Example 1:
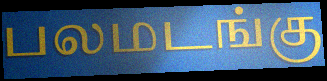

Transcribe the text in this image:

பலமடங்கு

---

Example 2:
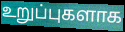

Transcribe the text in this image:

உறுப்புகளாக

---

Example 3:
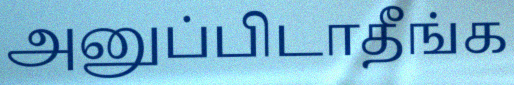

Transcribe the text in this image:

அனுப்பிடாதீங்க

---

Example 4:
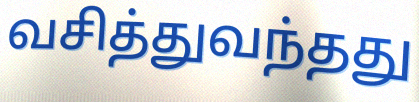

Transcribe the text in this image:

வசித்துவந்தது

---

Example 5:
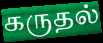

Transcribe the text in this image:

கருதல்